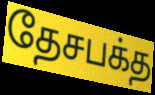
தேசபக்த